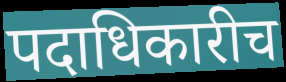
पदाधिकारीच